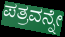
ಪತ್ರವನ್ನೇ